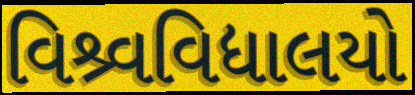
વિશ્ર્વવિદ્યાલયો